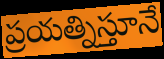
ప్రయత్నిస్తూనే